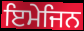
ਇਮੇਜਿਨ